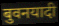
बुवनयादी